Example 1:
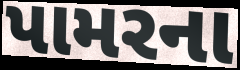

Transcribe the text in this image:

પામરના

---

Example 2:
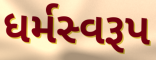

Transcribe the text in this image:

ધર્મસ્વરૂપ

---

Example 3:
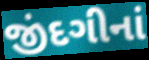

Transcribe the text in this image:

જીંદગીનાં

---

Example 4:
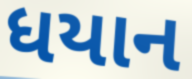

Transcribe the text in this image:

ધયાન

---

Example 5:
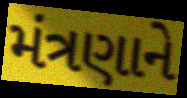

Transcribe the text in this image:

મંત્રણાને